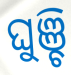
ଘୁଞ୍ଚି